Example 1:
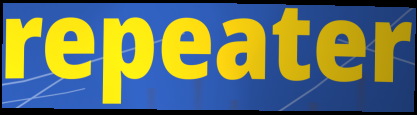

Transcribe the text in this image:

repeater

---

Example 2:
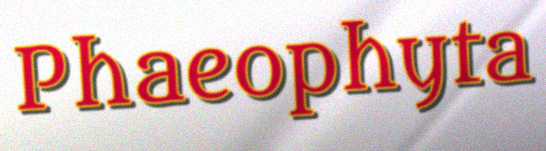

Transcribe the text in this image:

Phaeophyta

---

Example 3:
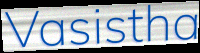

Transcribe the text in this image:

Vasistha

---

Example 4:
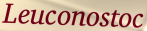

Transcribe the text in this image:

Leuconostoc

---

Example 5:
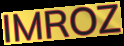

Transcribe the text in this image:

IMROZ